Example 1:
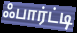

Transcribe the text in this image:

ஃபார்ட்டி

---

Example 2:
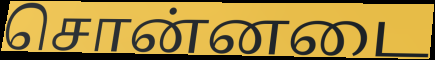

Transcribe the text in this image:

சொன்னடை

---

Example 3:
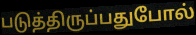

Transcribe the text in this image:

படுத்திருப்பதுபோல்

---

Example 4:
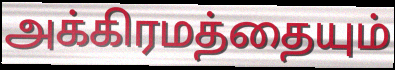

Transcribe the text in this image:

அக்கிரமத்தையும்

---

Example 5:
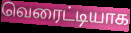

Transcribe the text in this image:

வெரைட்டியாக